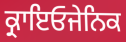
ਕ੍ਰਾਇਓਜੇਨਿਕ